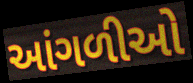
આંગળીઓ